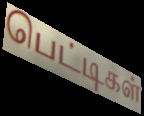
பெட்டிகள்